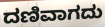
ದಣಿವಾಗದು